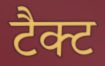
टैक्ट